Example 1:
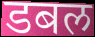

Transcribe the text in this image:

डबल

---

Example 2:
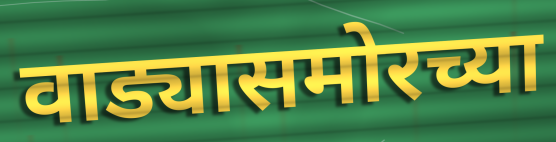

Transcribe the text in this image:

वाड्यासमोरच्या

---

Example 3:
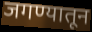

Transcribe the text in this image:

जगण्यातून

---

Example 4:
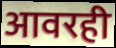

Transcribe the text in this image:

आवरही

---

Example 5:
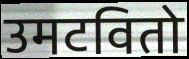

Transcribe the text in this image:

उमटवितो